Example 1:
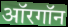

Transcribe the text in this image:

ऑरगॉन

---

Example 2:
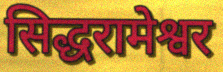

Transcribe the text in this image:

सिद्धरामेश्वर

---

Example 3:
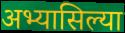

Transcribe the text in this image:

अभ्यासिल्या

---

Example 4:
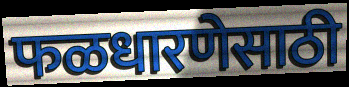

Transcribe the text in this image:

फळधारणेसाठी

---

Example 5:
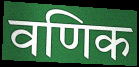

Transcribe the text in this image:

वणिक